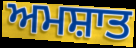
ਅਮਸ਼ਾਤ